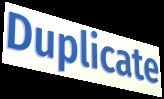
Duplicate